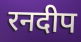
रनदीप